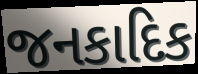
જનકાદિક